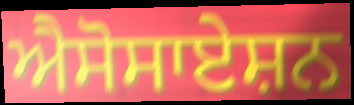
ਐਸੋਸਾਏਸ਼ਨ